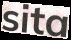
sita